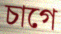
চাগে